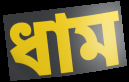
ধাম